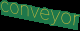
conveyor